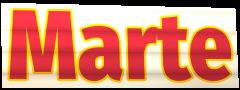
Marte